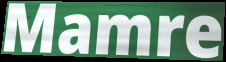
Mamre